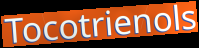
Tocotrienols